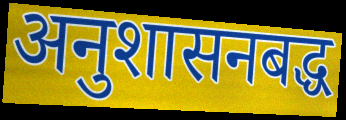
अनुशासनबद्ध